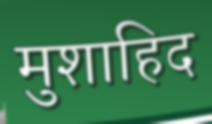
मुशाहिद